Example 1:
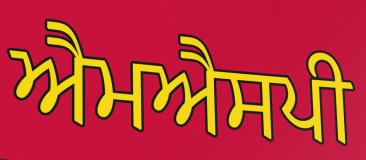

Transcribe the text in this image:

ਐਮਐਸਪੀ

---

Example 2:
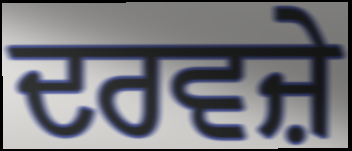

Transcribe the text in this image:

ਦਰਵਜ਼ੇ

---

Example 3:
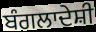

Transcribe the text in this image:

ਬੰਗਲਾਦੇਸ਼ੀ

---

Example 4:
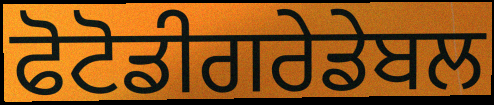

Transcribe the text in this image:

ਫੋਟੋਡੀਗਰੇਡੇਬਲ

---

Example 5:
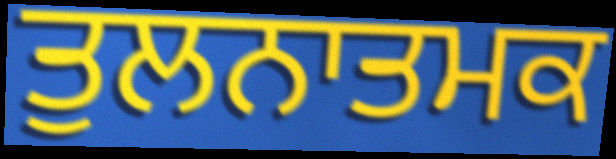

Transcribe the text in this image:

ਤੁਲਨਾਤਮਕ